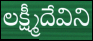
లక్ష్మీదేవిని